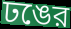
ঢঙের